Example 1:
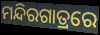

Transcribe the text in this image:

ମନ୍ଦିରଗାତ୍ରରେ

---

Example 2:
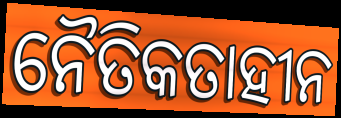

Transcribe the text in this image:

ନୈତିକତାହୀନ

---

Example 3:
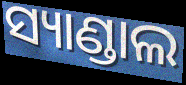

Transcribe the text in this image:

ସ୍ୟାଣ୍ଡାଲ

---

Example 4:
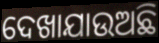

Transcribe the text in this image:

ଦେଖାଯାଉଅଛି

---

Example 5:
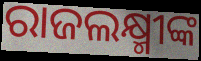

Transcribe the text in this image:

ରାଜଲକ୍ଷ୍ମୀଙ୍କ